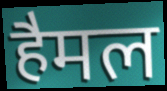
हैमल